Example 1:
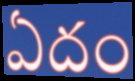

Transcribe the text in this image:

ఏదం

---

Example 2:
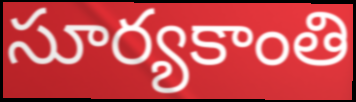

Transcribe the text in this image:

సూర్యకాంతి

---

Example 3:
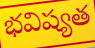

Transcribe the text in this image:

భవిష్యత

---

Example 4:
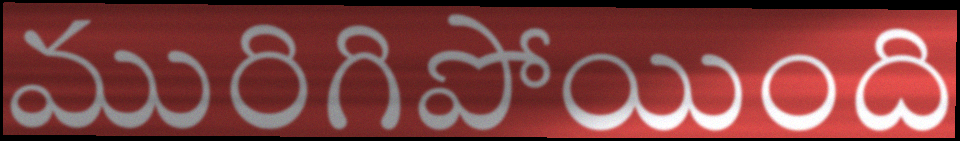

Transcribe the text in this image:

మురిగిపోయింది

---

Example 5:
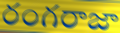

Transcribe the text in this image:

రంగరాజా